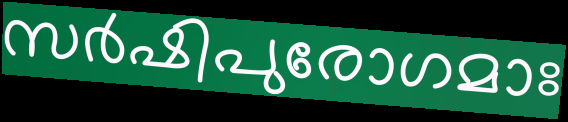
സർഷിപുരോഗമാഃ